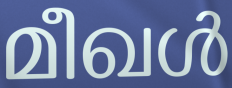
മീഖൾ